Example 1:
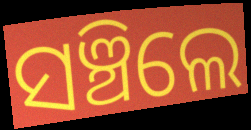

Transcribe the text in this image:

ସଞ୍ଚିଲେ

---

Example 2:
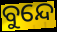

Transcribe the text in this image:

ବୁନ୍ଦେ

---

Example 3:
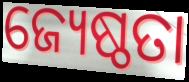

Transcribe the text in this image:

ଜ୍ୟେଷ୍ଠତା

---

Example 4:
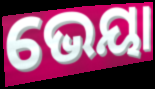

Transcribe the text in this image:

ଭେୟା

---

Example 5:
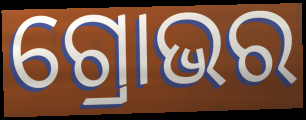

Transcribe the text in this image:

ଗ୍ରୋଭର